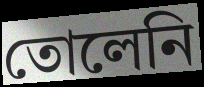
তোলেনি